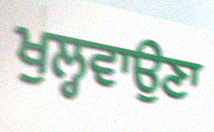
ਖੁਲ੍ਹਵਾਉਣਾ